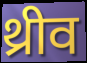
थ्रीव